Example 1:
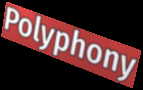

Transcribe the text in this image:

Polyphony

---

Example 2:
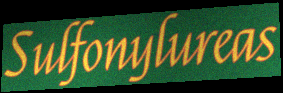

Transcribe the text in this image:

Sulfonylureas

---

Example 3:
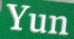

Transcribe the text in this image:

Yun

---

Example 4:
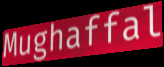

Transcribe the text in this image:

Mughaffal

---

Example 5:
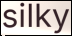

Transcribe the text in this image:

silky